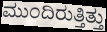
ಮುಂದಿರುತ್ತಿತ್ತು